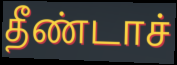
தீண்டாச்